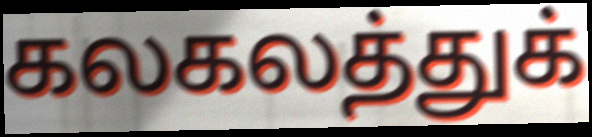
கலகலத்துக்